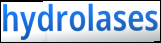
hydrolases